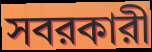
সবরকারী